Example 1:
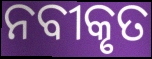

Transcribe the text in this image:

ନବୀକୃତ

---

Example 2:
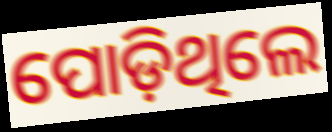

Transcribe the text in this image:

ପୋଡ଼ିଥିଲେ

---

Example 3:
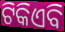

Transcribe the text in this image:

ଟିକିଏବି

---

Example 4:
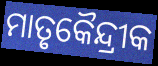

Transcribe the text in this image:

ମାତୃକୈନ୍ଦ୍ରୀକ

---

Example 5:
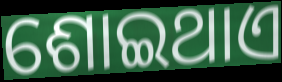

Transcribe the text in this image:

ଶୋଇଥାଏ